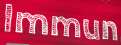
Immun